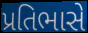
પ્રતિભાસે